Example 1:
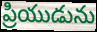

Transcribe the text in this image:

ప్రియుడును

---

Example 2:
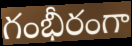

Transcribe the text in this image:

గంభీరంగా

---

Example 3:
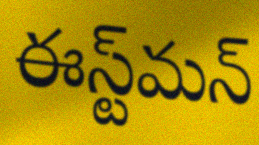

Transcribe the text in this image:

ఈస్ట్‌మన్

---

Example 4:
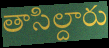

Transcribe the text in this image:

తాసిల్దారు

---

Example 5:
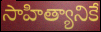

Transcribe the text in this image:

సాహిత్యానికే